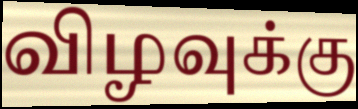
விழவுக்கு